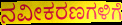
ನವೀಕರಣಗಳಿಗೆ